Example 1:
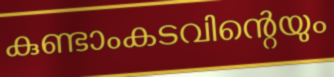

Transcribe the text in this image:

കുണ്ടാംകടവിന്റെയും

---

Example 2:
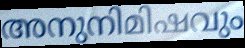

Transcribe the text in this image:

അനുനിമിഷവും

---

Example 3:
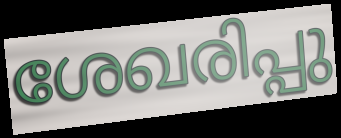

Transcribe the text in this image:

ശേഖരിപ്പു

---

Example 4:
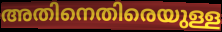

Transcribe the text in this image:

അതിനെതിരെയുള്ള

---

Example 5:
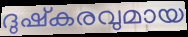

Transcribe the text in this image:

ദുഷ്കരവുമായ